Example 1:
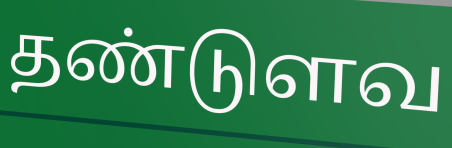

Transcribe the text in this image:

தண்டுளவ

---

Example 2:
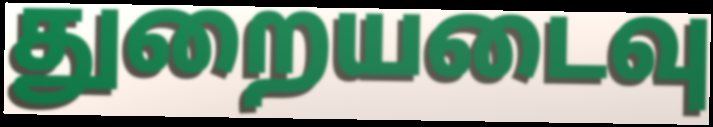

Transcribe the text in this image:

துறையடைவு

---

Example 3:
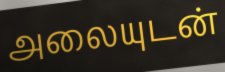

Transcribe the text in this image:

அலையுடன்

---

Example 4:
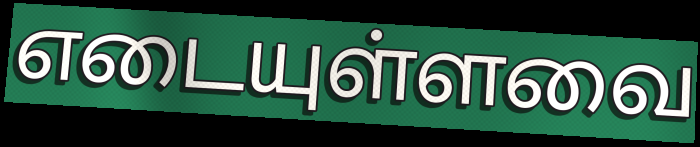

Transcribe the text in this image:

எடையுள்ளவை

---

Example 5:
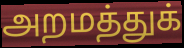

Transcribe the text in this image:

அறமத்துக்